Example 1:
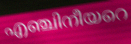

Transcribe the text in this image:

എഞ്ചിനീയറെ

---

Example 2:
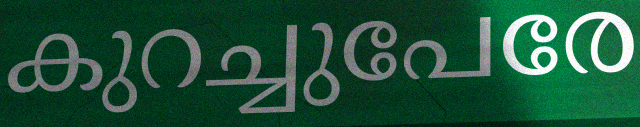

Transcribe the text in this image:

കുറച്ചുപേരേ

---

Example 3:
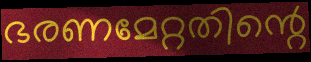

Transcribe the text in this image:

ഭരണമേറ്റതിന്റെ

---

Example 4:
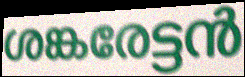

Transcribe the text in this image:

ശങ്കരേട്ടൻ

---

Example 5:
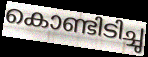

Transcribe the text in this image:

കൊണ്ടിടിച്ചു